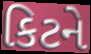
કિટને